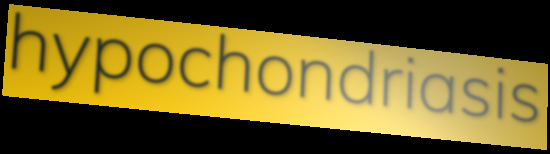
hypochondriasis